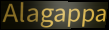
Alagappa